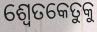
ଶ୍ୱେତକେତୁକୁ